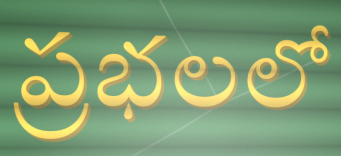
ప్రభలలో